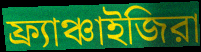
ফ্র্যাঞ্চাইজিরা